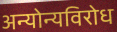
अन्योन्यविरोध